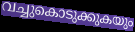
വച്ചുകൊടുക്കുകയും